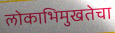
लोकाभिमुखतेचा